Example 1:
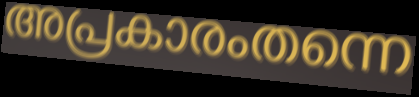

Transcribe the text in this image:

അപ്രകാരംതന്നെ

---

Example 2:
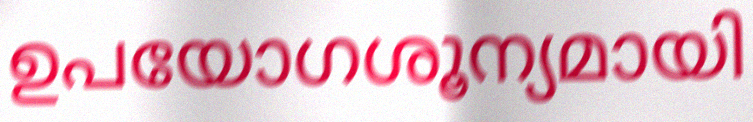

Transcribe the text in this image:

ഉപയോഗശൂന്യമായി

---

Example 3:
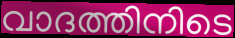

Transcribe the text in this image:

വാദത്തിനിടെ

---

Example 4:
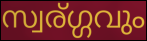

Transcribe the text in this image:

സ്വര്ഗ്ഗവും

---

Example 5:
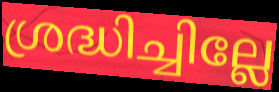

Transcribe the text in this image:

ശ്രദ്ധിച്ചില്ലേ